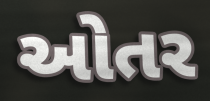
ઓતર